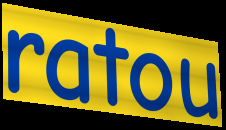
ratou